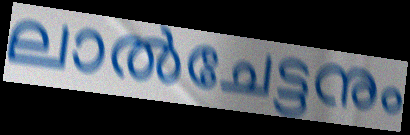
ലാൽചേട്ടനും